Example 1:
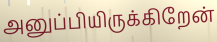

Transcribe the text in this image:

அனுப்பியிருக்கிறேன்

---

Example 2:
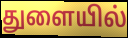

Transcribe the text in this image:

துளையில்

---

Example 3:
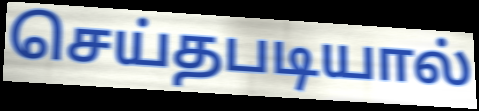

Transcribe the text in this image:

செய்தபடியால்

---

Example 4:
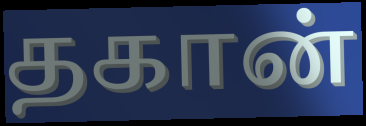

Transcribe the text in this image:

தகான்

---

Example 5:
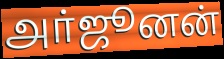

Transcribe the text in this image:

அர்ஜூனன்